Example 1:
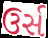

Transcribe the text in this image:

ઉર્સ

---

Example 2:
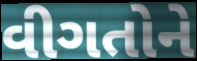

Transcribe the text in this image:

વીગતોને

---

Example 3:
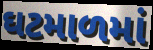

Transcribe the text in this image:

ઘટમાળમાં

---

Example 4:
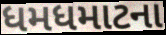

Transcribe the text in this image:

ધમધમાટના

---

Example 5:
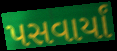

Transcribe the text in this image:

પસવાર્યાં